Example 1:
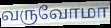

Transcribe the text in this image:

வருவோமா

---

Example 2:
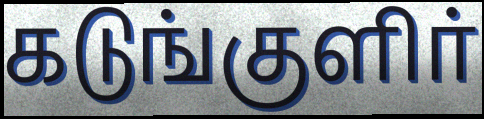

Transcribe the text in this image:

கடுங்குளிர்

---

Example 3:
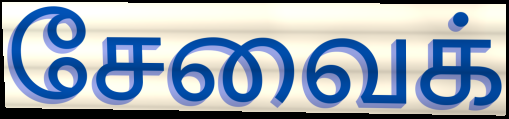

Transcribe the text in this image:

சேவைக்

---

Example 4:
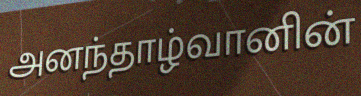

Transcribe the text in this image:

அனந்தாழ்வானின்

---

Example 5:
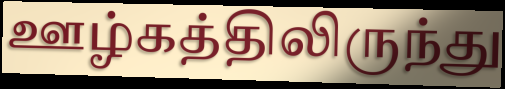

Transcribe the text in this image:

ஊழ்கத்திலிருந்து